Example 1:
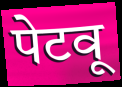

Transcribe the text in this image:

पेटवू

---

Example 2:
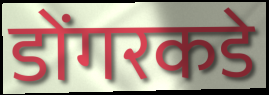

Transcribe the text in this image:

डोंगरकडे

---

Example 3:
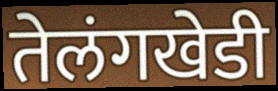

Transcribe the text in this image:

तेलंगखेडी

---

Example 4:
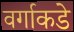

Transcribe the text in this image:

वर्गाकडे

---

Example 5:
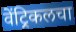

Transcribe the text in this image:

वेंट्रिकलचा